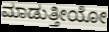
ಮಾಡುತ್ತೀಯೋ